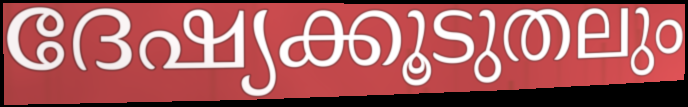
ദേഷ്യക്കൂടുതലും